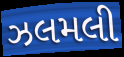
ઝલમલી